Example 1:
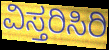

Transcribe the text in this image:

ವಿಸ್ತರಿಸಿರಿ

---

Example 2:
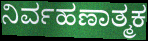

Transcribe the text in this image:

ನಿರ್ವಹಣಾತ್ಮಕ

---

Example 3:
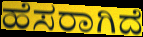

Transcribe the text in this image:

ಹೆಸರಾಗಿದೆ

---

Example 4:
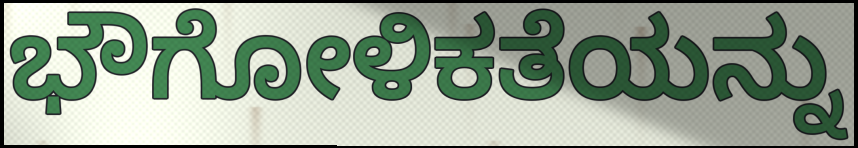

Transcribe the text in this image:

ಭೌಗೋಳಿಕತೆಯನ್ನು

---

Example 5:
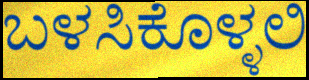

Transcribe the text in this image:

ಬಳಸಿಕೊಳ್ಳಲಿ